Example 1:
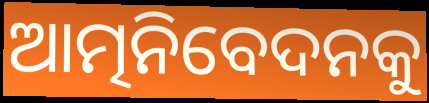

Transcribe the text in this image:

ଆତ୍ମନିବେଦନକୁ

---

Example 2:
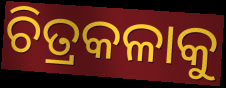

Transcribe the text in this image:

ଚିତ୍ରକଳାକୁ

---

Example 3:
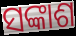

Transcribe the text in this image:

ସଙ୍କାଶ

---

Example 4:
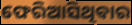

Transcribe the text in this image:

ଫେରିଆସିଥିବାର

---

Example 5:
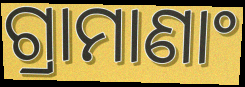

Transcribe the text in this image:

ଗ୍ରାମାଣାଂ